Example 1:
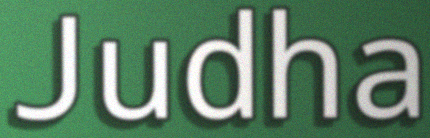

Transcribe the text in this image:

Judha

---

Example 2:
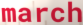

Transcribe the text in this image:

march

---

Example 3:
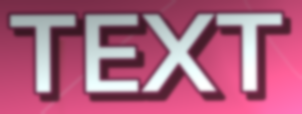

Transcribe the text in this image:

TEXT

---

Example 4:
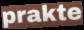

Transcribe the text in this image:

prakte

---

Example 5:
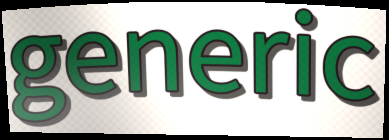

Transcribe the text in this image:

generic